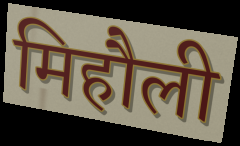
मिहौली